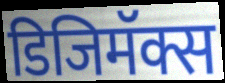
डिजिमॅक्स